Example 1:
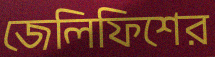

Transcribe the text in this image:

জেলিফিশের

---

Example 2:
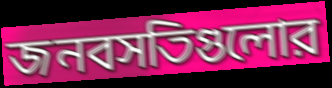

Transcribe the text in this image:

জনবসতিগুলোর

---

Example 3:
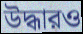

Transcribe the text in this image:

উদ্ধারও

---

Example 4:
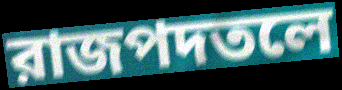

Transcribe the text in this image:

রাজপদতলে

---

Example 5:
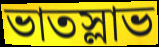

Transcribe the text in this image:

ভাতস্লাভ